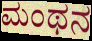
ಮಂಥನ